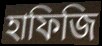
হাফিজি